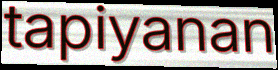
tapiyanan